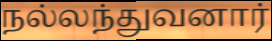
நல்லந்துவனார்